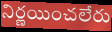
నిర్ణయించలేరు